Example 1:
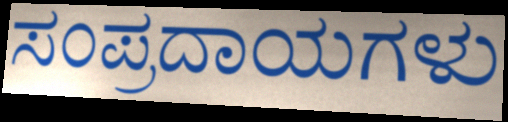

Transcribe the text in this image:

ಸಂಪ್ರದಾಯಗಳು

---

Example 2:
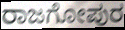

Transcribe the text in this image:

ರಾಜಗೋಪುರ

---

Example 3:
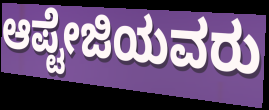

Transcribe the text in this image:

ಆಪ್ಟೇಜಿಯವರು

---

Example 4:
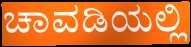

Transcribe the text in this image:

ಚಾವಡಿಯಲ್ಲಿ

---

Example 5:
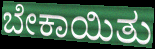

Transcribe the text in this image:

ಬೇಕಾಯಿತು